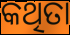
କଥିତା